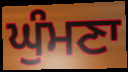
ਘੁੰਮਣਾ